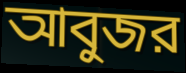
আবুজর